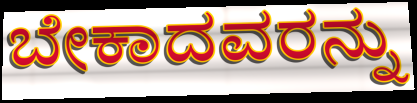
ಬೇಕಾದವರನ್ನು